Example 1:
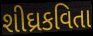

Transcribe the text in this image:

શીઘ્રકવિતા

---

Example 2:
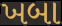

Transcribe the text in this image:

ખબા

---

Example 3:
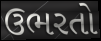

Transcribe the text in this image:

ઉભરતો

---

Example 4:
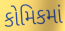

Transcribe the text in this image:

કોમિકમાં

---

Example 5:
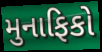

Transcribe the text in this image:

મુનાફિકો